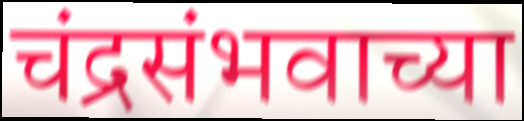
चंद्रसंभवाच्या